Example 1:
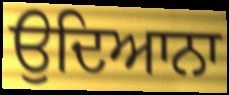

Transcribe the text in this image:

ਉਦਿਆਨਾ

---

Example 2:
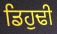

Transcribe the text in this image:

ਡਿਹੁਢੀ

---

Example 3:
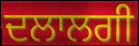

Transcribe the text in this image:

ਦਲਾਲਗੀ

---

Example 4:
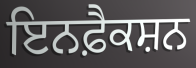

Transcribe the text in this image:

ਇਨਫ਼ੈਕਸ਼ਨ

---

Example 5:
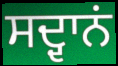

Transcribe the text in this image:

ਸਦ੍ਦਾਨਂ